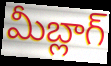
మీబ్లాగ్